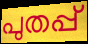
പുതപ്പ്